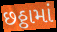
છઠ્ઠામાં